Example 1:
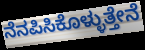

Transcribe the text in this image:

ನೆನಪಿಸಿಕೊಳ್ಳುತ್ತೇನೆ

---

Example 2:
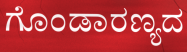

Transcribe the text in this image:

ಗೊಂಡಾರಣ್ಯದ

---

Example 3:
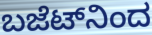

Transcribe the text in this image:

ಬಜೆಟ್‌ನಿಂದ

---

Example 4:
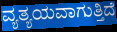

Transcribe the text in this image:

ವ್ಯತ್ಯಯವಾಗುತ್ತಿದೆ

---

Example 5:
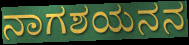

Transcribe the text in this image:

ನಾಗಶಯನನ